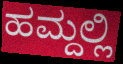
ಹಮ್ದಲ್ಲಿ